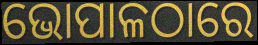
ଭୋପାଳଠାରେ